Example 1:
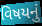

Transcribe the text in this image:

વિષયનું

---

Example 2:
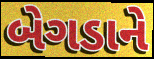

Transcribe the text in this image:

બેગડાને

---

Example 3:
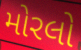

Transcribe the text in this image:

મોરલો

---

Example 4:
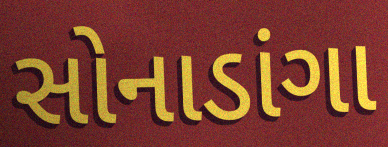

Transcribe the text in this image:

સોનાડાંગા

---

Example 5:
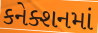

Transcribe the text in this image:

કનેક્શનમાં